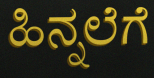
ಹಿನ್ನಲೆಗೆ